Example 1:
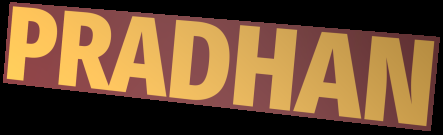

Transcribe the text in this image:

PRADHAN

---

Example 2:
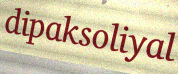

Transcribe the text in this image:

dipaksoliyal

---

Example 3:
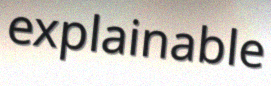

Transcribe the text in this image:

explainable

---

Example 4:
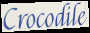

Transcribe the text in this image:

Crocodile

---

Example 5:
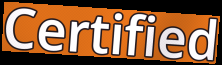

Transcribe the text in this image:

Certified